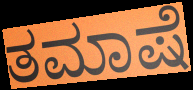
ತಮಾಷೆ